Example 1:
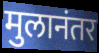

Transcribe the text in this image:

मुलानंतर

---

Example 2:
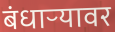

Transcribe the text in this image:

बंधाऱ्यावर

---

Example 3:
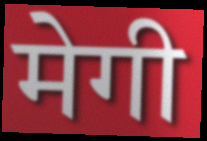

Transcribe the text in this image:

मेगी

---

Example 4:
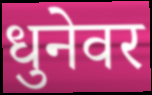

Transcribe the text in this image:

धुनेवर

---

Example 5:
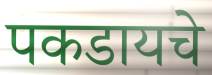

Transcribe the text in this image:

पकडायचे